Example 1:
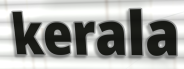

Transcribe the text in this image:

kerala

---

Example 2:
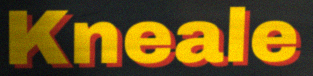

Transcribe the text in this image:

Kneale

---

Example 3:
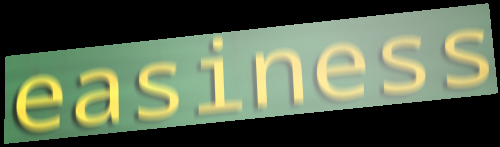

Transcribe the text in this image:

easiness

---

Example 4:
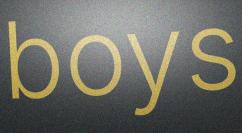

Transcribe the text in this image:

boys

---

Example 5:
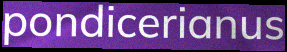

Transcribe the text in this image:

pondicerianus